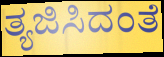
ತ್ಯಜಿಸಿದಂತೆ